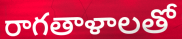
రాగతాళాలతో